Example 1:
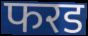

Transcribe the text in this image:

फरड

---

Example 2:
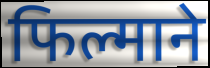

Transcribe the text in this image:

फिल्माने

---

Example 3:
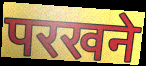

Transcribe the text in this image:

परखने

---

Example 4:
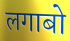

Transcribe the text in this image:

लगाबो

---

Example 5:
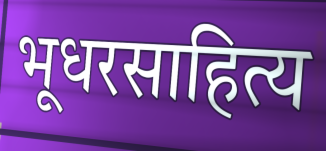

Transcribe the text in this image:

भूधरसाहित्य